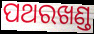
ପଥରଖଣ୍ଡ